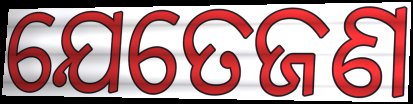
ଯେତେଜଣ